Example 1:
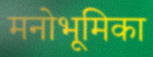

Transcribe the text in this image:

मनोभूमिका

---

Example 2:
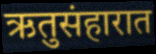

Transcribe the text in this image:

ऋतुसंहारात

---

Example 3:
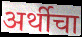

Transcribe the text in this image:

अर्थीचा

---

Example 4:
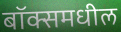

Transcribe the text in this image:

बॉक्समधील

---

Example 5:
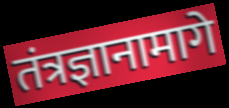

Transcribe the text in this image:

तंत्रज्ञानामागे